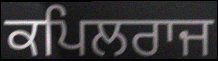
ਕਪਿਲਰਾਜ